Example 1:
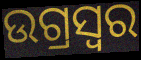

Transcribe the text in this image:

ଉଗ୍ରସ୍ୱର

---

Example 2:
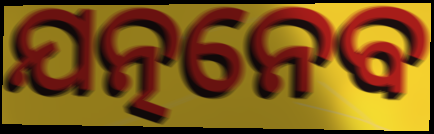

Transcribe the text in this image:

ଯତ୍ନନେବ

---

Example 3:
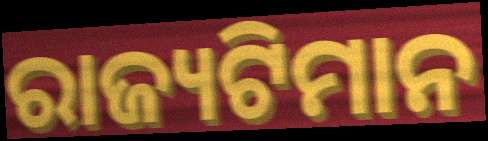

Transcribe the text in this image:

ରାଜ୍ୟଟିମାନ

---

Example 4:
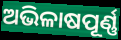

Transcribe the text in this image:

ଅଭିଳାଷପୂର୍ଣ୍ଣ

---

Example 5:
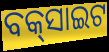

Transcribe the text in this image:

ବକ୍‌ସାଇଟ